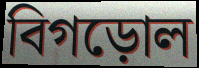
বিগড়োল